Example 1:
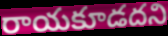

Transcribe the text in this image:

రాయకూడదని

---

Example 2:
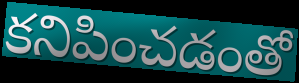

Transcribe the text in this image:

కనిపించడంతో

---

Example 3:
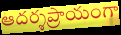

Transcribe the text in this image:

ఆదర్శప్రాయంగా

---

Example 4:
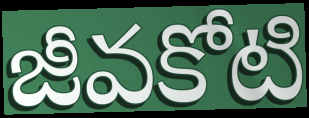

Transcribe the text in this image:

జీవకోటి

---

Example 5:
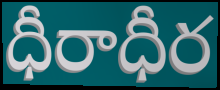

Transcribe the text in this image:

ధీరాధీర